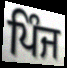
ਪਿੰਜ